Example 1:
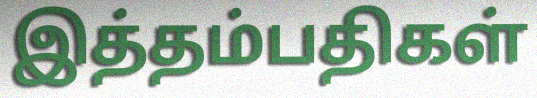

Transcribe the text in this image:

இத்தம்பதிகள்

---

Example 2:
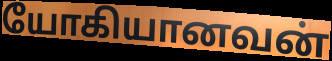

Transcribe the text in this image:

யோகியானவன்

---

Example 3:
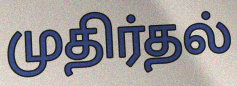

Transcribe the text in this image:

முதிர்தல்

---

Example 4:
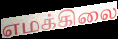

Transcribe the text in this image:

எமக்கிலை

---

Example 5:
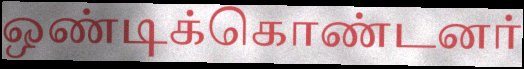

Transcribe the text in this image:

ஒண்டிக்கொண்டனர்